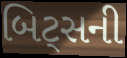
બિટ્સની